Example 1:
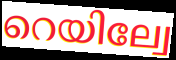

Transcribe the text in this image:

റെയില്വേ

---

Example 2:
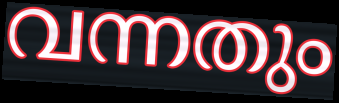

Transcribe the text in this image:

വന്നതും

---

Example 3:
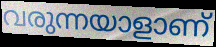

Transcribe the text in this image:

വരുന്നയാളാണ്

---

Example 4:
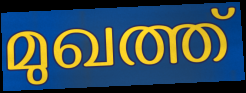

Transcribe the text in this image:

മുഖത്ത്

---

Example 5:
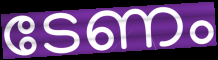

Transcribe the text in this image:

ടേണം